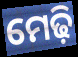
ମେଢ଼ି